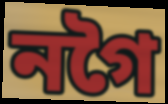
নগৈ